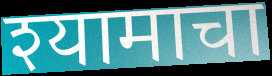
श्यामाचा